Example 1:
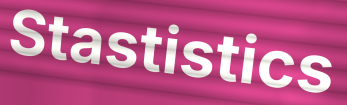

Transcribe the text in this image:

Stastistics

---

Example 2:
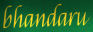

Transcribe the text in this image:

bhandaru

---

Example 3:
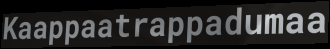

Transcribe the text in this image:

Kaappaatrappadumaa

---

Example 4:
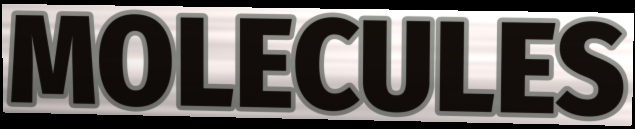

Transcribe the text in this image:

MOLECULES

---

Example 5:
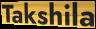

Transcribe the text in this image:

Takshila